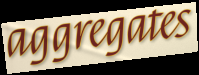
aggregates